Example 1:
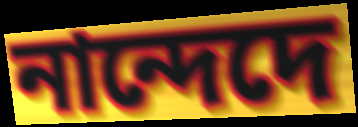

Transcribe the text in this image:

নান্দেদে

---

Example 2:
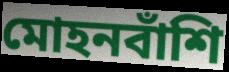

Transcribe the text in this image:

মোহনবাঁশি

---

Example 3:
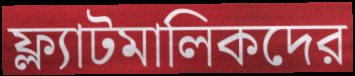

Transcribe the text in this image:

ফ্ল্যাটমালিকদের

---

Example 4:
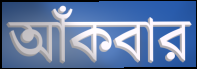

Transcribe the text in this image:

আঁকবার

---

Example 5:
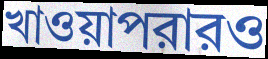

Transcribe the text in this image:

খাওয়াপরারও